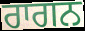
ਰਾਗਨ